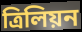
ত্ৰিলিয়ন